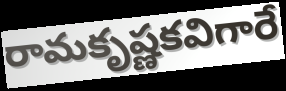
రామకృష్ణకవిగారే